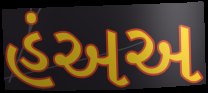
હંઅઅ